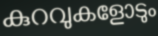
കുറവുകളോടും